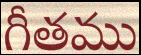
గీతము